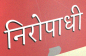
निरोपाधी